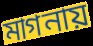
মাগনায়